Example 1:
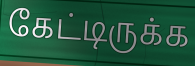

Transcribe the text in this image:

கேட்டிருக்க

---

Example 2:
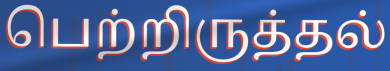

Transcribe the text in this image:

பெற்றிருத்தல்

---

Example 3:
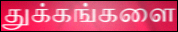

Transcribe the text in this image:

துக்கங்களை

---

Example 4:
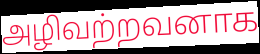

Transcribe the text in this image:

அழிவற்றவனாக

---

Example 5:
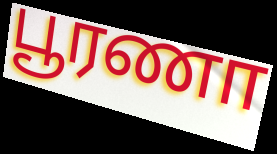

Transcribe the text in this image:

பூரணா